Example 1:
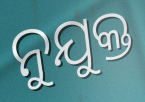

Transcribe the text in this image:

ନୁଯୁକ୍ତ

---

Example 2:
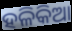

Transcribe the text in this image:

ହଳିକିଆ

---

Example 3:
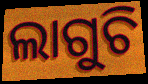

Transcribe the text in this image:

ଲାଗୁଚି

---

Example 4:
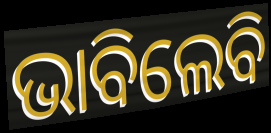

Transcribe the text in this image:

ଭାବିଲେବି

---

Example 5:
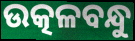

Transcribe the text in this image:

ଉତ୍କଳବନ୍ଧୁ